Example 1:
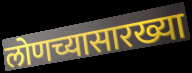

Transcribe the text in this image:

लोणच्यासारख्या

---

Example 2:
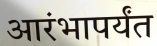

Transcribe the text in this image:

आरंभापर्यंत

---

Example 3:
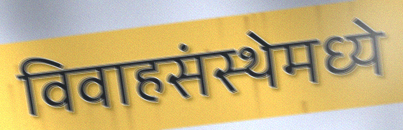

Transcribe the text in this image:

विवाहसंस्थेमध्ये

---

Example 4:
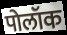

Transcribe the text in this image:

पोलॉक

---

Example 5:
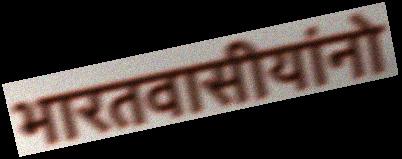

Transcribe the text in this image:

भारतवासीयांनो